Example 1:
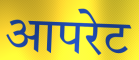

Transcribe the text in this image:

आपरेट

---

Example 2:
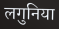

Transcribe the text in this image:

लगुनिया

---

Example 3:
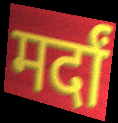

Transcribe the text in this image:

मर्दां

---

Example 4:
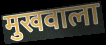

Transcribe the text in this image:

मुखवाला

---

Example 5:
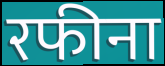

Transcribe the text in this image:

रफीना